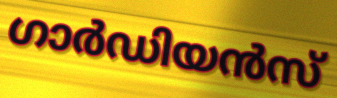
ഗാർഡിയൻസ്